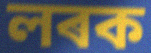
লৰক